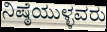
ನಿಷ್ಠೆಯುಳ್ಳವರು